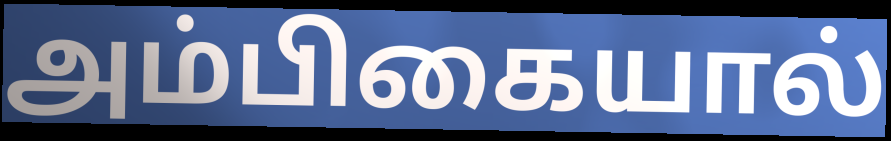
அம்பிகையால்